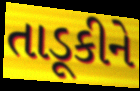
તાડૂકીને